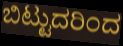
ಬಿಟ್ಟುದರಿಂದ